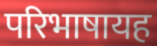
परिभाषायह